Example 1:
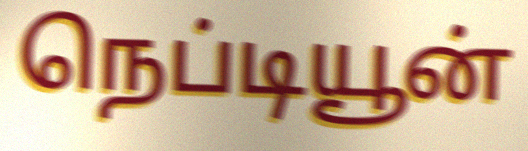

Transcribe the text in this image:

நெப்டியூன்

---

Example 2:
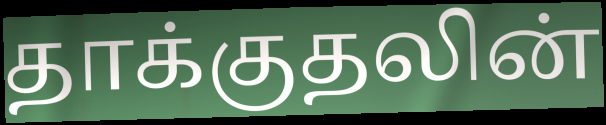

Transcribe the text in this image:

தாக்குதலின்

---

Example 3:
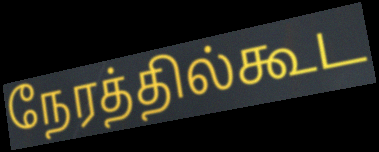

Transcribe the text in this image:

நேரத்தில்கூட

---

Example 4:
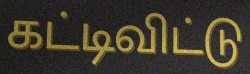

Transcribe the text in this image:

கட்டிவிட்டு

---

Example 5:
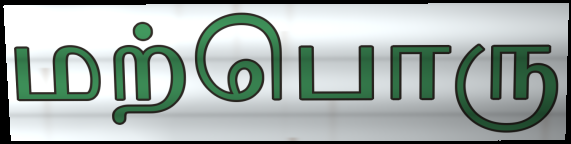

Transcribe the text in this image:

மற்பொரு